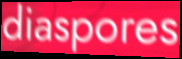
diaspores